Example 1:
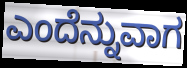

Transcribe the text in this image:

ಎಂದೆನ್ನುವಾಗ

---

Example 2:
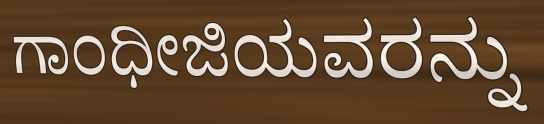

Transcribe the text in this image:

ಗಾಂಧೀಜಿಯವರನ್ನು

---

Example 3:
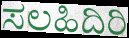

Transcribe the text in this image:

ಸಲಹಿದಿರಿ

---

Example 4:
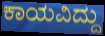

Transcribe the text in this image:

ಕಾಯವಿದ್ದು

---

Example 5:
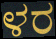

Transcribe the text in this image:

ಳರ